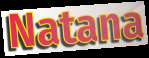
Natana